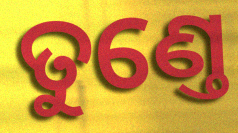
ତୁଣ୍ତେ